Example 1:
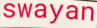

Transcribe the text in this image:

swayan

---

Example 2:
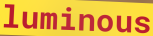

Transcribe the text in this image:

luminous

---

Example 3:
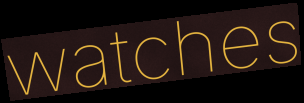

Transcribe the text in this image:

watches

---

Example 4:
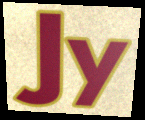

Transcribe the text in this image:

Jy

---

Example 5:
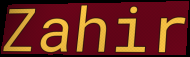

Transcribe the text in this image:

Zahir